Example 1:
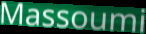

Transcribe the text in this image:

Massoumi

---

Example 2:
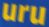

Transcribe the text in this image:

uru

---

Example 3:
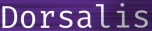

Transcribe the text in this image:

Dorsalis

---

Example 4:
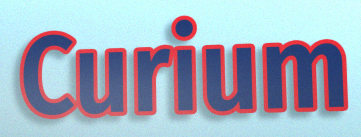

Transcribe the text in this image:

Curium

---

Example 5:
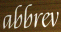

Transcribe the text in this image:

abbrev